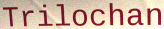
Trilochan